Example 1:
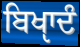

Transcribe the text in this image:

ਬਿਖੵਾਦੰ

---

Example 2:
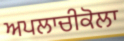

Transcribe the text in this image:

ਅਪਲਾਚੀਕੋਲਾ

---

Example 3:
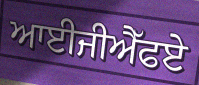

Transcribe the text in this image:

ਆਈਜੀਐੱਫਏ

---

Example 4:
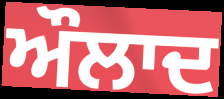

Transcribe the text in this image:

ਔਲਾਦ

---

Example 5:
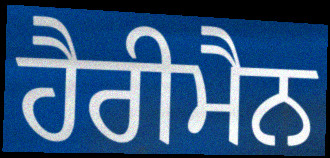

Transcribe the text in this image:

ਹੈਰੀਮੈਨ